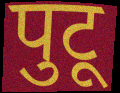
पुटू